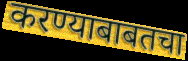
करण्याबाबतचा